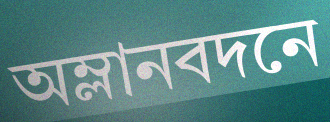
অম্লানবদনে